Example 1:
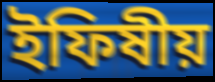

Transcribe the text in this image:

ইফিষীয়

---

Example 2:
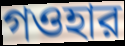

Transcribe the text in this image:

গওহার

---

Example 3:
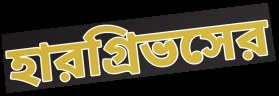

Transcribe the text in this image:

হারগ্রিভসের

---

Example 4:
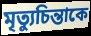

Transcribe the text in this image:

মৃত্যুচিন্তাকে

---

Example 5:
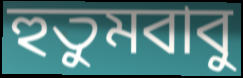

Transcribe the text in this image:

হুতুমবাবু